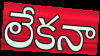
లేకనా